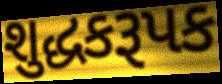
શુદ્ધકરૂપક